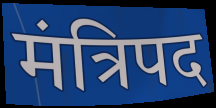
मंत्रिपद